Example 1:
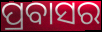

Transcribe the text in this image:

ପ୍ରବାସର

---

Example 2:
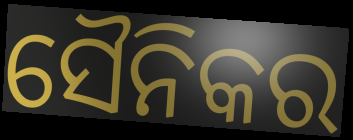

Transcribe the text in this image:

ସୈନିକର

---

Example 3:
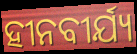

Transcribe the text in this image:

ହୀନବୀର୍ଯ୍ୟ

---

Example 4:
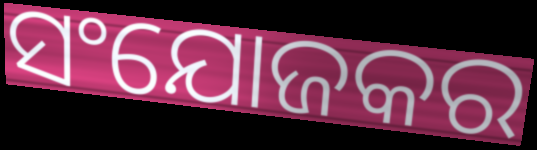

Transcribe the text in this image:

ସଂଯୋଜକର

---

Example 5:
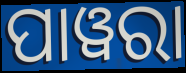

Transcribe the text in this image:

ପାୱରା